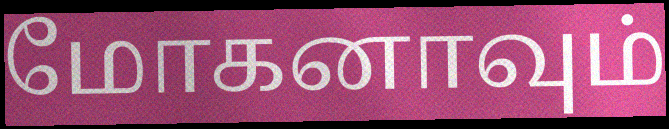
மோகனாவும்